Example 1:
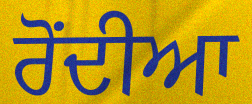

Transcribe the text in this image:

ਰੋਂਦੀਆ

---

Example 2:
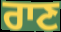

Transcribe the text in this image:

ਰਾਣ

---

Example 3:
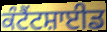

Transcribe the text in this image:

ਕੰਟੈਂਟਸ਼ਾਈਡ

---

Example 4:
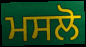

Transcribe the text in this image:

ਮਸਲੋ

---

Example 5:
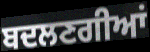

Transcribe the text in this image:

ਬਦਲਣਗੀਆਂ